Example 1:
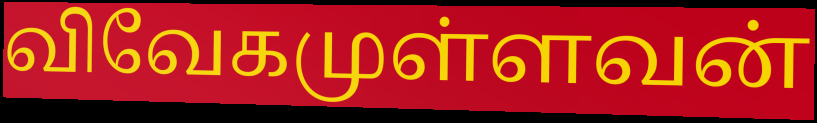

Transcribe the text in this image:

விவேகமுள்ளவன்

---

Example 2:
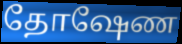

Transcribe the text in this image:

தோஷேண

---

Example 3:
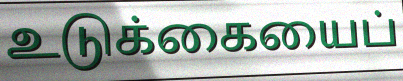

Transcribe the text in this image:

உடுக்கையைப்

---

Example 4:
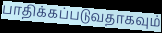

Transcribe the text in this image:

பாதிக்கப்படுவதாகவும்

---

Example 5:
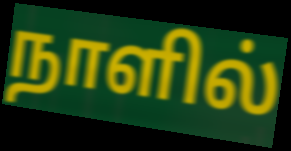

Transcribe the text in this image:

நாளில்